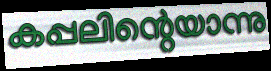
കപ്പലിന്റെയാന്നു